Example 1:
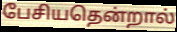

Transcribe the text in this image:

பேசியதென்றால்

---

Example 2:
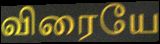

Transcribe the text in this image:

விரையே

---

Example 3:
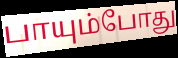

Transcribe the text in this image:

பாயும்போது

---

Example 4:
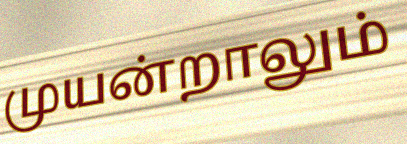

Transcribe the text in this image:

முயன்றாலும்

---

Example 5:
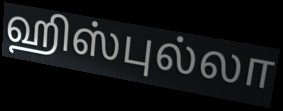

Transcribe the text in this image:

ஹிஸ்புல்லா